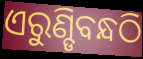
ଏରୁଣ୍ଡିବନ୍ଧଠି